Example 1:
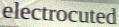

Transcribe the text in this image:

electrocuted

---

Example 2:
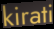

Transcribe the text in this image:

kirati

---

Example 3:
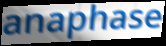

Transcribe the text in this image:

anaphase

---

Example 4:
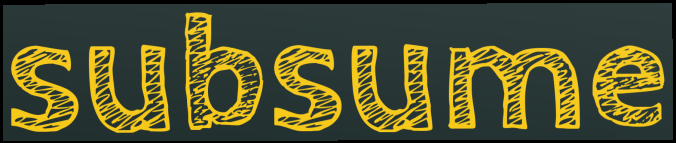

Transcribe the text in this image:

subsume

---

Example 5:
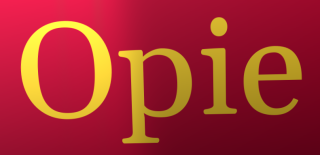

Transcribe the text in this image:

Opie